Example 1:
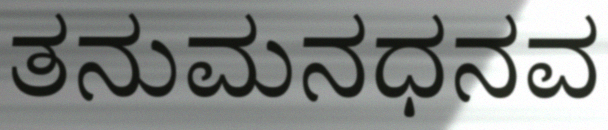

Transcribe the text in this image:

ತನುಮನಧನವ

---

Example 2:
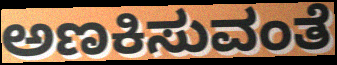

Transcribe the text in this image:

ಅಣಕಿಸುವಂತೆ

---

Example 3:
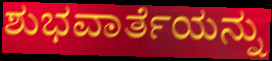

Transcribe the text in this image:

ಶುಭವಾರ್ತೆಯನ್ನು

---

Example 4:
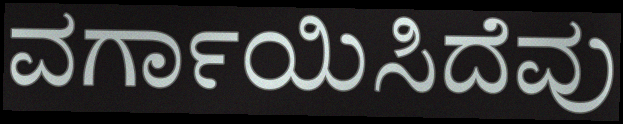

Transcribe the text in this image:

ವರ್ಗಾಯಿಸಿದೆವು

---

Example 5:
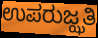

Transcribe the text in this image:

ಉಪರುಜ್ಝತಿ